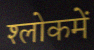
श्‍लोकमें